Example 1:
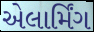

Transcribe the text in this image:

એલાર્મિંગ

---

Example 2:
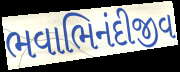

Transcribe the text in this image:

ભવાભિનંદીજીવ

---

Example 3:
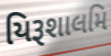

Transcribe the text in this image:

યિરૂશાલમિ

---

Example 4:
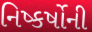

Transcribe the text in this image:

નિષ્કર્ષોની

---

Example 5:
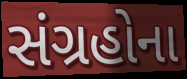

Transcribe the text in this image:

સંગ્રહોના